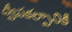
ద్వీపకల్పానికి